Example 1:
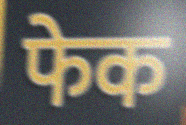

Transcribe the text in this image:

फेक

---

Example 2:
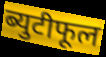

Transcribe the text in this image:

ब्युटीफूल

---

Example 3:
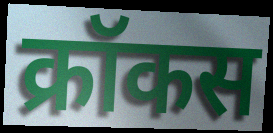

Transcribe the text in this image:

क्रॉकस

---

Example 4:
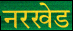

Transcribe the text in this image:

नरखेड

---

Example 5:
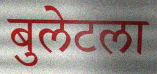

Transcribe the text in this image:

बुलेटला